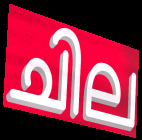
ചില